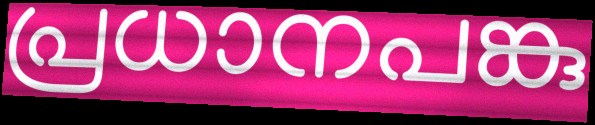
പ്രധാനപങ്കു